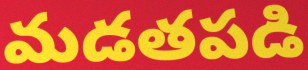
మడతపడి